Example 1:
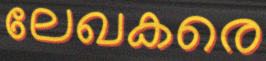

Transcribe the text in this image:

ലേഖകരെ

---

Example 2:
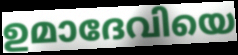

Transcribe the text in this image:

ഉമാദേവിയെ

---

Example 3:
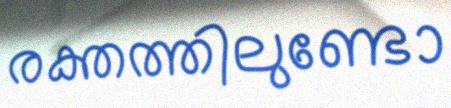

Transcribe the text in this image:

രക്തത്തിലുണ്ടോ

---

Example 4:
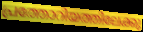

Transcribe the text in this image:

പ്രത്തോറിയത്തിലേക്കു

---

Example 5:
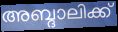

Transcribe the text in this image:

അബ്ദാലിക്ക്